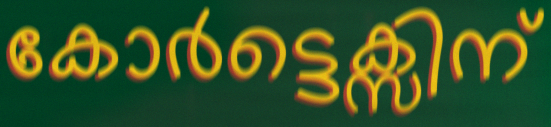
കോർട്ടെക്സിന്